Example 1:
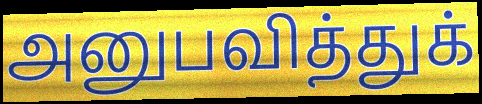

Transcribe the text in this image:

அனுபவித்துக்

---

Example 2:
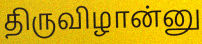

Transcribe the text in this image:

திருவிழான்னு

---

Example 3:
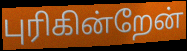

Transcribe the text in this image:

புரிகின்றேன்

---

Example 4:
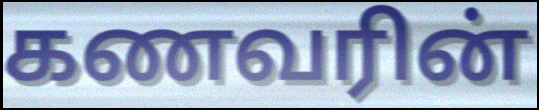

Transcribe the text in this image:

கணவரின்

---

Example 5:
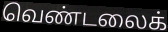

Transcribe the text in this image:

வெண்டலைக்